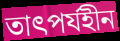
তাৎপর্যহীন